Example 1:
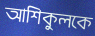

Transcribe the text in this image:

আশিকুলকে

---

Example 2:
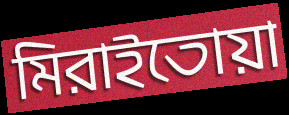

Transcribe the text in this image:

মিরাইতোয়া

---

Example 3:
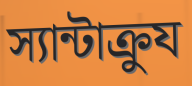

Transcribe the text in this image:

স্যান্টাক্রুয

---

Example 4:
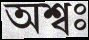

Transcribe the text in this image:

অশ্বঃ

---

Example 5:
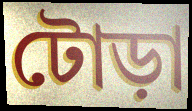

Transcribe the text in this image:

টোড়া